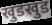
खुडखुड